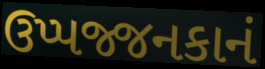
ઉપ્પજ્જનકાનં